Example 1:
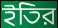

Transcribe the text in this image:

ইতির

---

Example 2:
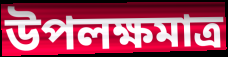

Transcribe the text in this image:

উপলক্ষমাত্র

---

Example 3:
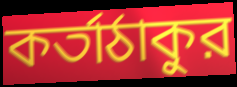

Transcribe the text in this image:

কর্তাঠাকুর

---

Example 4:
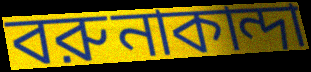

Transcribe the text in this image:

বরুনাকান্দা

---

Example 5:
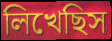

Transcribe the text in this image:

লিখেছিস